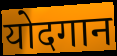
योदगान